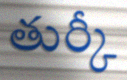
తుర్కీ